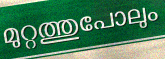
മുറ്റത്തുപോലും